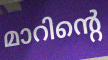
മാറിന്റെ